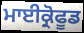
ਮਾਈਕ੍ਰੋਫੂਡ